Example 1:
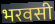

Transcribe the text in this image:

भरवसी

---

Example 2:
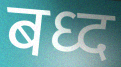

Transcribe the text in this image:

बध्द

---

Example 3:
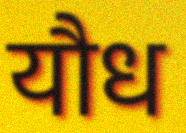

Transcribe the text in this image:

यौध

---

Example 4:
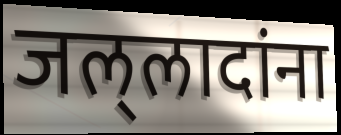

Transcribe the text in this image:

जल्लादांना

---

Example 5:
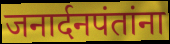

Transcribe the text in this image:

जनार्दनपंतांना